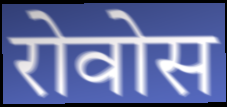
रोवोस